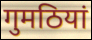
गुमठियां